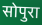
सोपुरा